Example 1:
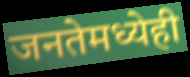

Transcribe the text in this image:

जनतेमध्येही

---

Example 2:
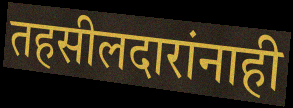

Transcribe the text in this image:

तहसीलदारांनाही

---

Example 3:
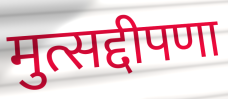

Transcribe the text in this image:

मुत्सद्दीपणा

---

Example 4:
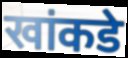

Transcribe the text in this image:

खांकडे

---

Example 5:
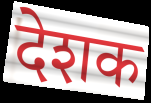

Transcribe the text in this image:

देशक